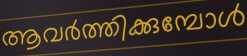
ആവർത്തിക്കുമ്പോൾ